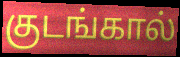
குடங்கால்